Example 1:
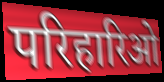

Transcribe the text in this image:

परिहारिओ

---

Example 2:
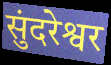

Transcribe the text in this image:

सुंदरेश्वर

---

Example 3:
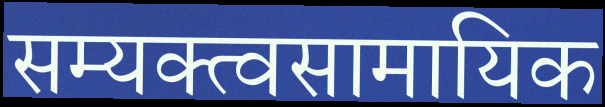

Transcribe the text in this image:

सम्यक्त्वसामायिक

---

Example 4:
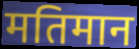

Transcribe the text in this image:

मतिमान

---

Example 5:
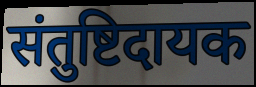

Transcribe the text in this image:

संतुष्टिदायक